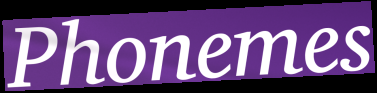
Phonemes